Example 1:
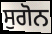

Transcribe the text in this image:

ਸੁਗੋਨ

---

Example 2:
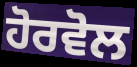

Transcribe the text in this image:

ਹੋਰਵੋਲ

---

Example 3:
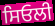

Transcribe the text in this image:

ਸਿਓਲੀ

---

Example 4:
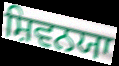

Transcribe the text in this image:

ਸ਼ਿਵਨਯਾ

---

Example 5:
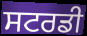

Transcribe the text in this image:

ਸਟਰਡੀ